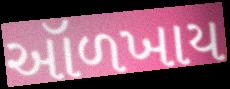
ઑળખાય